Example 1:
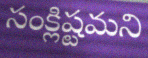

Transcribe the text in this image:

సంక్లిష్టమని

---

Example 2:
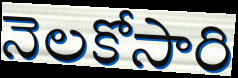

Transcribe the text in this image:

నెలకోసారి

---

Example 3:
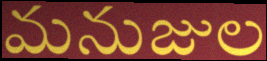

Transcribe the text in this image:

మనుజుల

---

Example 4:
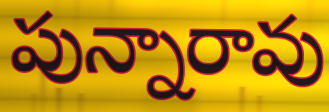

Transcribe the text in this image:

పున్నారావు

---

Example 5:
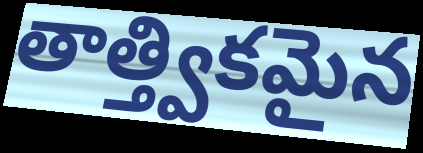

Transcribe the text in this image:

తాత్త్వికమైన